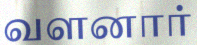
வளனார்